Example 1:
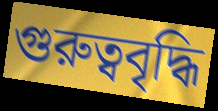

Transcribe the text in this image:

গুরুত্ববৃদ্ধি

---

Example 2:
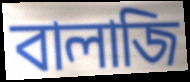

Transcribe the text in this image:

বালাজি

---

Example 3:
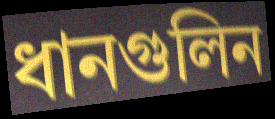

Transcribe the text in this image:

ধানগুলিন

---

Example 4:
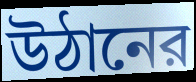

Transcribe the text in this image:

উঠানের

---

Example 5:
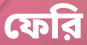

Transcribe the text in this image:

ফেরি